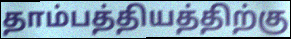
தாம்பத்தியத்திற்கு